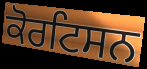
ਕੋਰਟਿਸਨ